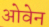
ओवेन